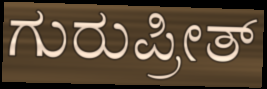
ಗುರುಪ್ರೀತ್